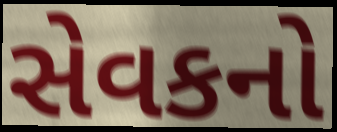
સેવકનો